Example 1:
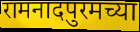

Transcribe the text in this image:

रामनादपुरमच्या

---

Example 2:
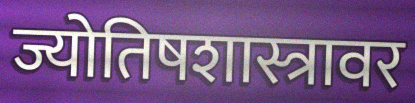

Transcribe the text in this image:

ज्योतिषशास्त्रावर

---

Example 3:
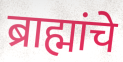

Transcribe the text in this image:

ब्राह्मांचे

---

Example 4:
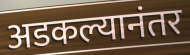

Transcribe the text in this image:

अडकल्यानंतर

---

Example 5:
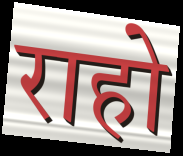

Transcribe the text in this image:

राहो